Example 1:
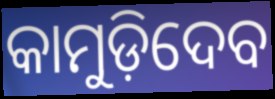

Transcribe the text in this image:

କାମୁଡ଼ିଦେବ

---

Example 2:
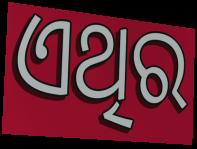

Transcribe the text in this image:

ଏଥିର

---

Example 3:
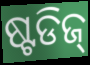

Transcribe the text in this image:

ଷ୍ଟଡିଜ୍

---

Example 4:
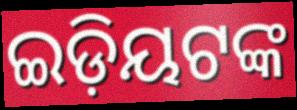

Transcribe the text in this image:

ଇଡ଼ିୟଟଙ୍କ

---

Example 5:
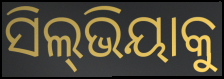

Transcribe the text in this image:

ସିଲ୍‍ଭିୟାକୁ